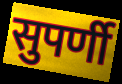
सुपर्णी